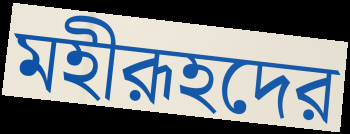
মহীরূহদের